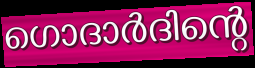
ഗൊദാർദിന്റെ